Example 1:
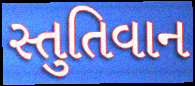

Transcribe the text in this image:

સ્તુતિવાન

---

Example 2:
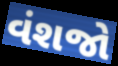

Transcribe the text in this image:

વંશજો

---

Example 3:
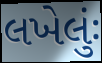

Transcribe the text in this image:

લખેલુંઃ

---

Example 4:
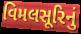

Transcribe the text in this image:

વિમલસૂરિનું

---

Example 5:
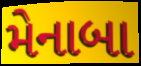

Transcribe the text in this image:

મેનાબા